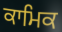
ਕਾਮਿਕ